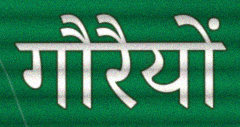
गौरैयों